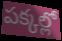
పక్కల్లో